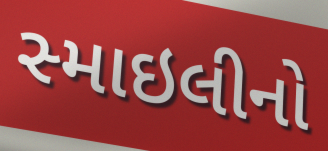
સ્માઇલીનો